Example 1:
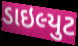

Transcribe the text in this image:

ડાઇલ્યુટ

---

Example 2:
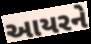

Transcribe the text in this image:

આયરને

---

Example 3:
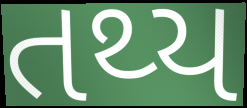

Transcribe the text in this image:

તથ્ય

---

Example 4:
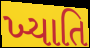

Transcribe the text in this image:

ખ્યાતિ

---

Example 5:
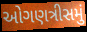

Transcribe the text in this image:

ઓગણત્રીસમું